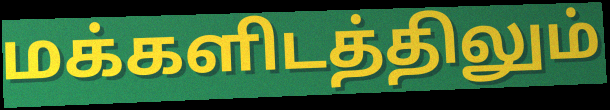
மக்களிடத்திலும்